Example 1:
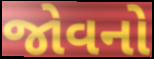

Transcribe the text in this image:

જોવનો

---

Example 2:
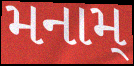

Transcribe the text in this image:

મનામ્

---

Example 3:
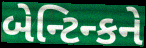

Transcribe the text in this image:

બેન્ટિન્કને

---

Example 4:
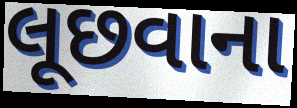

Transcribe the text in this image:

લૂછવાના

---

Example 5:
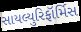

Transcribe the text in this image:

સાયલ્યુરિફૉર્મિસ